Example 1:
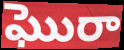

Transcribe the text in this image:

ఘొరా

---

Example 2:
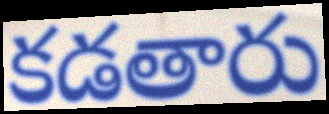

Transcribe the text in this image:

కడతారు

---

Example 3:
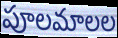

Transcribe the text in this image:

పూలమాలల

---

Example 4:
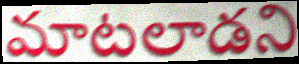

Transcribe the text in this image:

మాటలాడని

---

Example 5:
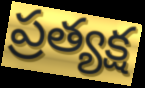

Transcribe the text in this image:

ప్రత్యక్ష